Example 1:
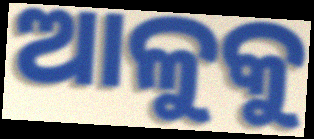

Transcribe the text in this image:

ଆଳୁକୁ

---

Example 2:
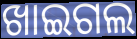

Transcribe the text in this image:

ଖାଇଗଲ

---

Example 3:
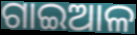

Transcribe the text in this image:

ଗାଇଆଳ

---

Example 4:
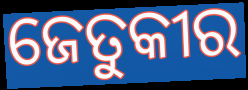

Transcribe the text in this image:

ଜେତୁକୀର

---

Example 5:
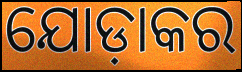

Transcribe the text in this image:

ଯୋଡ଼ାକର